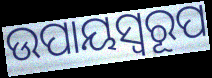
ଉପାୟସ୍ୱରୂପ